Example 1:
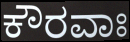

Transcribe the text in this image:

ಕೌರವಾಃ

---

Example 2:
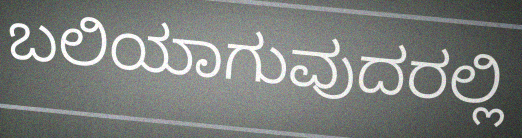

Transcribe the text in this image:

ಬಲಿಯಾಗುವುದರಲ್ಲಿ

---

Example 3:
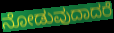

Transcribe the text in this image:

ನೋಡುವುದಾದರೆ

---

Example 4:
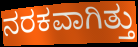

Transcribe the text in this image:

ನರಕವಾಗಿತ್ತು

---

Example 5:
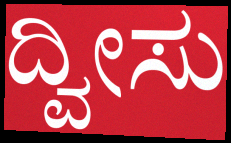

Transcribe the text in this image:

ದ್ವೀಸು